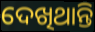
ଦେଖିଥାନ୍ତି